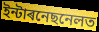
ইন্টাৰনেছনেলত